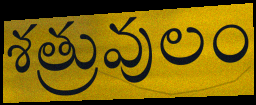
శత్రువులం